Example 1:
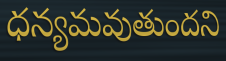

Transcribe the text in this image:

ధన్యమవుతుందని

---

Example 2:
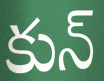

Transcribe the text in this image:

కున్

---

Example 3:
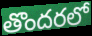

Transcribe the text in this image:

తొందరలో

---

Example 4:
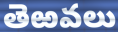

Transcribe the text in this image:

తెఱవలు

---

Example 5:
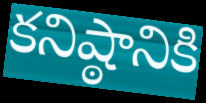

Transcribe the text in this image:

కనిష్ఠానికి